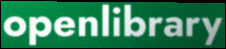
openlibrary